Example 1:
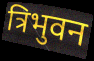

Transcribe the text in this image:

त्रिभुवन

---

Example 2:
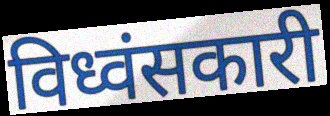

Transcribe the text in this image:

विध्वंसकारी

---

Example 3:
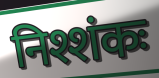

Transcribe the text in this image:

निश्शंकः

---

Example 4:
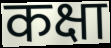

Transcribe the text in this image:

कक्षा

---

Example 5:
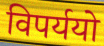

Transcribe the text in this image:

विपर्ययो